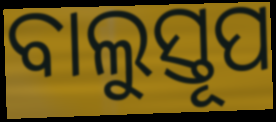
ବାଲୁସ୍ତୂପ